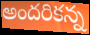
అందరికన్న